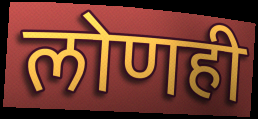
लोणही